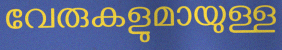
വേരുകളുമായുള്ള